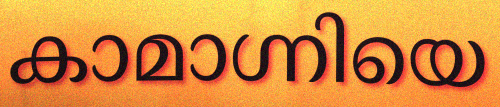
കാമാഗ്നിയെ